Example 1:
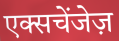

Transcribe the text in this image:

एक्सचेंजेज़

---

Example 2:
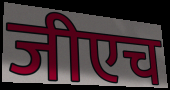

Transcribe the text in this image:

जीएच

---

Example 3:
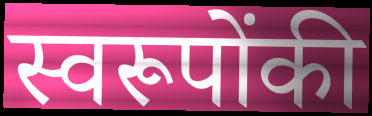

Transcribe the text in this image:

स्वरूपोंकी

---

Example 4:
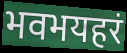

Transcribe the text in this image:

भवभयहरं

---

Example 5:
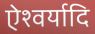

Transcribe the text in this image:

ऐश्वर्यादि